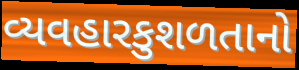
વ્યવહારકુશળતાનો